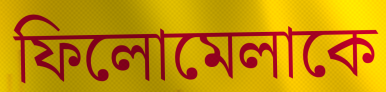
ফিলোমেলাকে